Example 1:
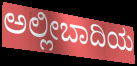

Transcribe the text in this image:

ಅಲ್ಲೀಬಾದಿಯ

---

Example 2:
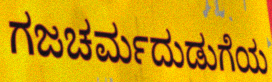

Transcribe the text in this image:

ಗಜಚರ್ಮದುಡುಗೆಯ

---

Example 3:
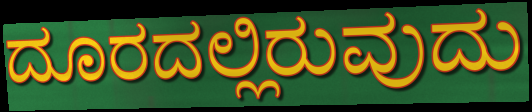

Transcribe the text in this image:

ದೂರದಲ್ಲಿರುವುದು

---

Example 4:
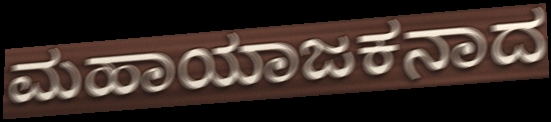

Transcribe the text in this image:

ಮಹಾಯಾಜಕನಾದ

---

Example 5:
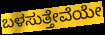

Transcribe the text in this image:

ಬಳಸುತ್ತೇವೆಯೇ